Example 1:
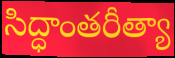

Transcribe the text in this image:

సిద్ధాంతరీత్యా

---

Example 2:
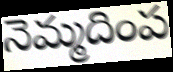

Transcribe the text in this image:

నెమ్మదింప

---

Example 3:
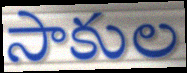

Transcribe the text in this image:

సాకుల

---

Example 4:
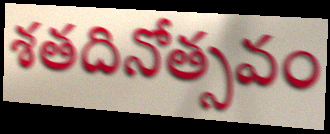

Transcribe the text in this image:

శతదినోత్సవం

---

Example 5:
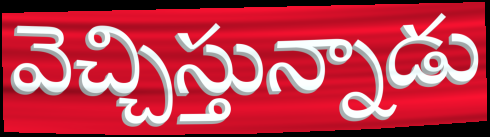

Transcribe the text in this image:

వెచ్చిస్తున్నాడు